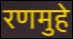
रणमुहे